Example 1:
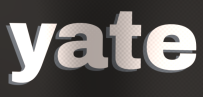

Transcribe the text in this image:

yate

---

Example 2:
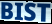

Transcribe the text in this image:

BIST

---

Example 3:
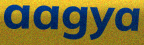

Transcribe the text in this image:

aagya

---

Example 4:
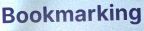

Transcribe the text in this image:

Bookmarking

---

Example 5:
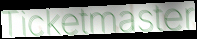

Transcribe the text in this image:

Ticketmaster